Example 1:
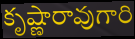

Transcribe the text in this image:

కృష్ణారావుగారి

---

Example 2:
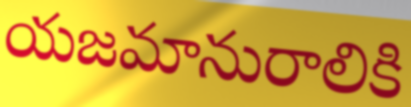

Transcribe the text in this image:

యజమానురాలికి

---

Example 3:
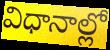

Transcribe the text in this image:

విధానాల్లో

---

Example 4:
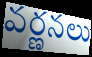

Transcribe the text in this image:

వర్ణనలు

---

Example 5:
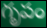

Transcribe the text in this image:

గృపం